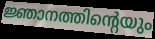
ജ്ഞാനത്തിന്റെയും